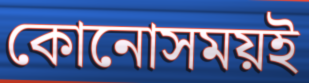
কোনোসময়ই